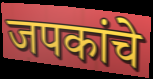
जपकांचे